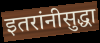
इतरांनीसुद्धा